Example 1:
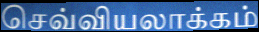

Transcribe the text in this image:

செவ்வியலாக்கம்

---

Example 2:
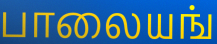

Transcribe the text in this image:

பாலையங்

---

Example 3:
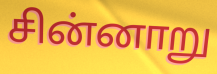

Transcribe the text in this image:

சின்னாறு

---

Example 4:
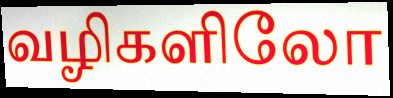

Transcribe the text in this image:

வழிகளிலோ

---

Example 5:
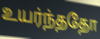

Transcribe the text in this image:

உயர்ந்ததோ